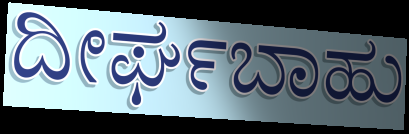
ದೀರ್ಘಬಾಹು